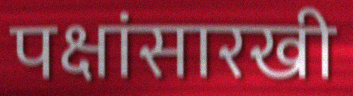
पक्षांसारखी